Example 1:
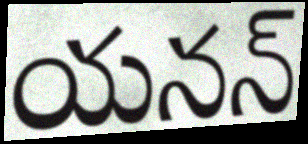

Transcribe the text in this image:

యనన్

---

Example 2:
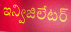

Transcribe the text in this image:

ఇన్విజిలేటర్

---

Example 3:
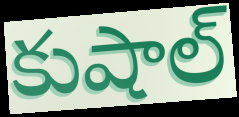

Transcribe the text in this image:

కుషాల్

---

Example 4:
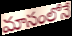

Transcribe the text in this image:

మాసంలోనే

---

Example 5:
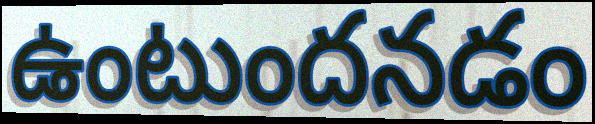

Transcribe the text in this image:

ఉంటుందనడం